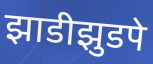
झाडीझुडपे